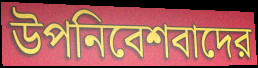
উপনিবেশবাদের